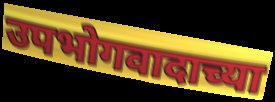
उपभोगवादाच्या